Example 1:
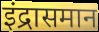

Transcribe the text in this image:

इंद्रासमान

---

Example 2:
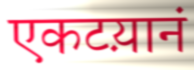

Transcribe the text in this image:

एकटय़ानं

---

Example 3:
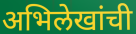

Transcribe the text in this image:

अभिलेखांची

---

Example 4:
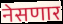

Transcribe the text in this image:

नेसणार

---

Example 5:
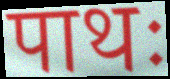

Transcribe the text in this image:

पाथः